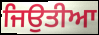
ਜਿਉਤੀਆ